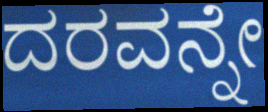
ದರವನ್ನೇ